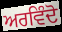
ਅਰਵਿੰਦੋ